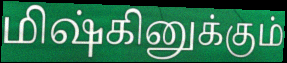
மிஷ்கினுக்கும்